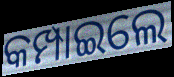
କମ୍ପାଇଲେ